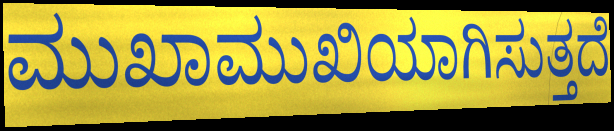
ಮುಖಾಮುಖಿಯಾಗಿಸುತ್ತದೆ